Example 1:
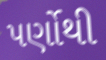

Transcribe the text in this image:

પર્ણોથી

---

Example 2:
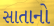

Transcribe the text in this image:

સાતાનો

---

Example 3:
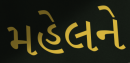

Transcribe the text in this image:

મહેલને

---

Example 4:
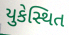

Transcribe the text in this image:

યુકેસ્થિત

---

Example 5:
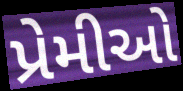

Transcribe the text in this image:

પ્રેમીઓ